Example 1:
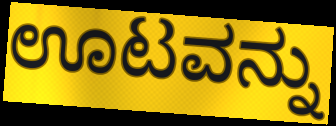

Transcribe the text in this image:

ಊಟವನ್ನು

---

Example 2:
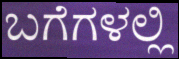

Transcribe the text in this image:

ಬಗೆಗಳಲ್ಲಿ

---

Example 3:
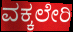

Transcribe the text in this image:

ವಕ್ಕಲೇರಿ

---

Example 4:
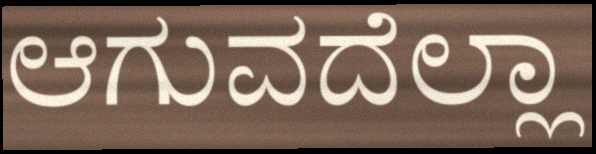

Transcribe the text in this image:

ಆಗುವದೆಲ್ಲಾ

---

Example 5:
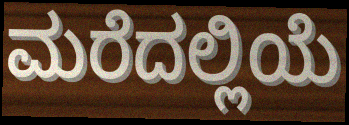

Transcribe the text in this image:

ಮರೆದಲ್ಲಿಯೆ